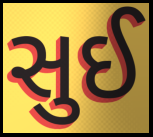
સુઈ